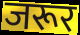
जरूर